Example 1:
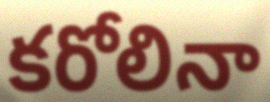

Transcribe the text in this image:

కరోలినా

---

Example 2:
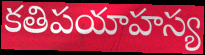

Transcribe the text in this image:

కతిపయాహస్య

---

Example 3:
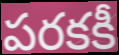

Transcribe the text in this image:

పరకకీ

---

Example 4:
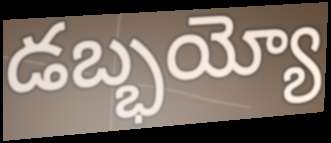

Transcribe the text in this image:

డబ్భయ్యో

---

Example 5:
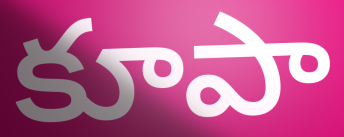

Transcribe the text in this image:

కూపా